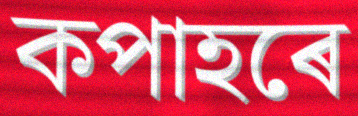
কপাহৰে